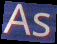
As